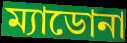
ম্যাডোনা